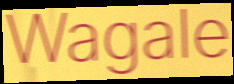
Wagale